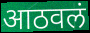
आठवलं